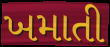
ખમાતી